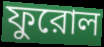
ফুরোল